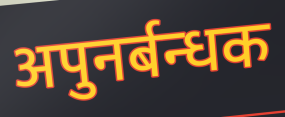
अपुनर्बन्धक